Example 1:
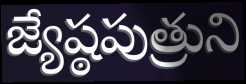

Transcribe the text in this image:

జ్యేష్ఠపుత్రుని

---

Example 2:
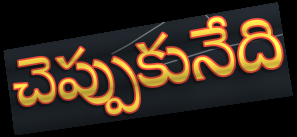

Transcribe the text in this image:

చెప్పుకునేది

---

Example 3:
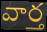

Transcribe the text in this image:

వార్త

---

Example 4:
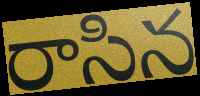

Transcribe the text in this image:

రాసిన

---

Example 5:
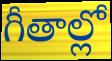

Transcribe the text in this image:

గీతాల్లో